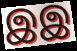
இஇ